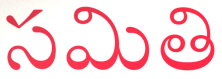
సమితి